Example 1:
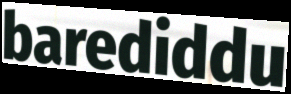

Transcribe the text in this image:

barediddu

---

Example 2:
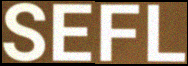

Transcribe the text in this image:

SEFL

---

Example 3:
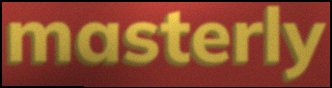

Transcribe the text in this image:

masterly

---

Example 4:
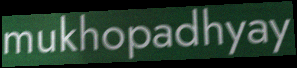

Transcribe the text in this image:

mukhopadhyay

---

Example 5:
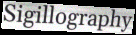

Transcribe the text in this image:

Sigillography